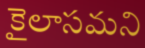
కైలాసమని